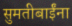
सुमतीबाईंना